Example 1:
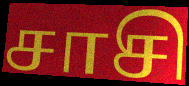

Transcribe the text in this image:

சாசி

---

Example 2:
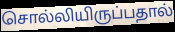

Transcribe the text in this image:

சொல்லியிருப்பதால்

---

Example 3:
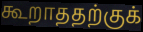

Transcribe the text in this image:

கூறாததற்குக்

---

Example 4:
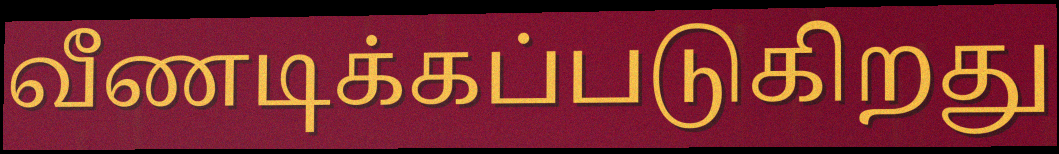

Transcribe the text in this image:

வீணடிக்கப்படுகிறது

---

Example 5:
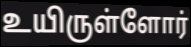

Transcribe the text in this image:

உயிருள்ளோர்